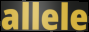
allele